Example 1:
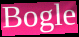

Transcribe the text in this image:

Bogle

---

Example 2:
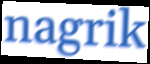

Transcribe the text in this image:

nagrik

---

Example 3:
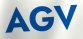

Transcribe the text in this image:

AGV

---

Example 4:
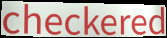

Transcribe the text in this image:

checkered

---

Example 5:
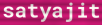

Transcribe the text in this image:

satyajit